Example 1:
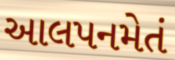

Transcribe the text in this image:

આલપનમેતં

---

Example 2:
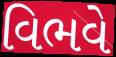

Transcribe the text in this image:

વિભવે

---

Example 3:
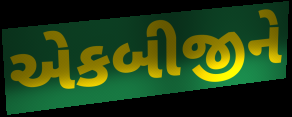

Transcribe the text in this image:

એકબીજીને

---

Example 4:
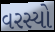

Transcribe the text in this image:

વરસ્યો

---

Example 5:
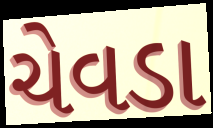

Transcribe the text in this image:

ચેવડા